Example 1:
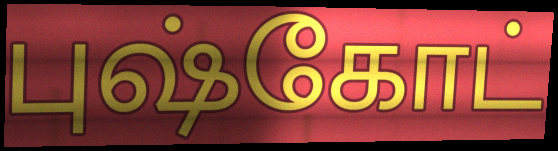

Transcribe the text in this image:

புஷ்கோட்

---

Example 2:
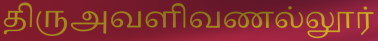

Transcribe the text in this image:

திருஅவளிவணல்லூர்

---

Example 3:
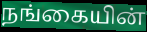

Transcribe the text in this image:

நங்கையின்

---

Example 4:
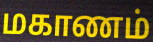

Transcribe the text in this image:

மகாணம்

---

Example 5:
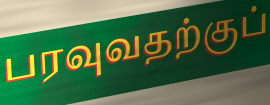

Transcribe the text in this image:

பரவுவதற்குப்